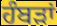
ਹੰਬੜਾਂ